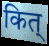
कित्